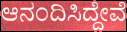
ಆನಂದಿಸಿದ್ದೇವೆ